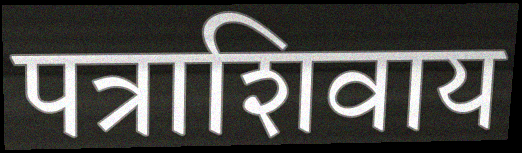
पत्राशिवाय